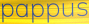
pappus